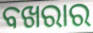
ବଖରାର